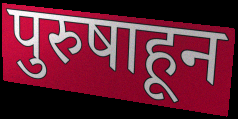
पुरुषाहून